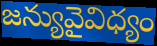
జన్యువైవిధ్యం